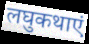
लघुकथाएं